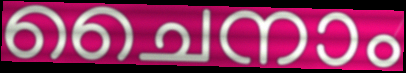
ചൈനാം